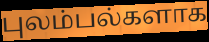
புலம்பல்களாக